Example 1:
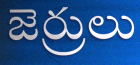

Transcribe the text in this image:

జెర్రులు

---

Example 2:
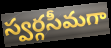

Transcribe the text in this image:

స్వర్గసీమగా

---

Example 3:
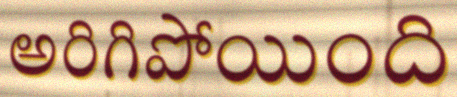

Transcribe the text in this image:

అరిగిపోయింది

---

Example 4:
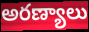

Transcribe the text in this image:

అరణ్యాలు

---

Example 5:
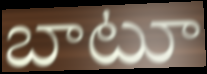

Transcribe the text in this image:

బాటూ